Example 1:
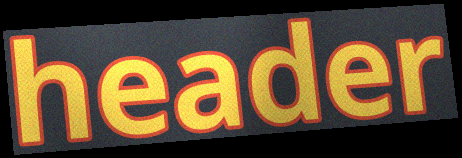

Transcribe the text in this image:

header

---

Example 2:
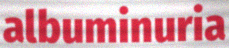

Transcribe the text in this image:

albuminuria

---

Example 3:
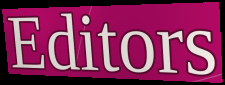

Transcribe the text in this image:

Editors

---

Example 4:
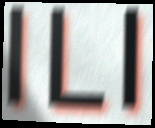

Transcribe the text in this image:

ILI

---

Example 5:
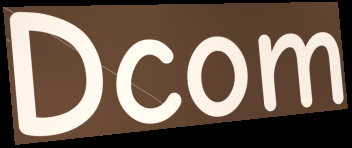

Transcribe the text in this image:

Dcom